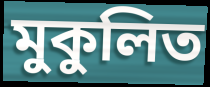
মুকুলিত